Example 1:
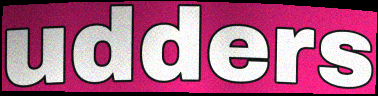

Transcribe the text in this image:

udders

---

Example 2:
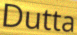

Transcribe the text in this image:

Dutta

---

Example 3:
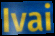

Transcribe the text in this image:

Ivai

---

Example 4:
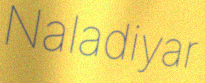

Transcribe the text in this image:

Naladiyar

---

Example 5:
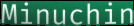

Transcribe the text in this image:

Minuchin